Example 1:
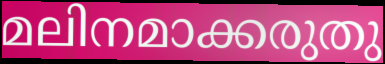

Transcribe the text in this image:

മലിനമാക്കരുതു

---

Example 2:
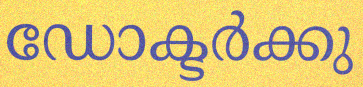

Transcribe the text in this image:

ഡോക്ടർക്കു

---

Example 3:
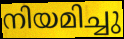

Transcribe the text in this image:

നിയമിച്ചു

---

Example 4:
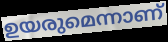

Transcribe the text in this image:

ഉയരുമെന്നാണ്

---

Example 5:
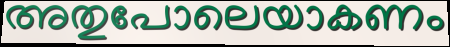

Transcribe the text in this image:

അതുപോലെയാകണം